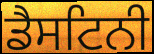
ਡੈਸਟਿਨੀ